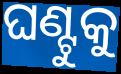
ଘଣ୍ଟୁକୁ